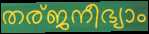
തര്ജനീഭ്യാം